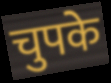
चुपके